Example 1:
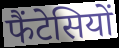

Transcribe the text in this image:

फैंटेसियों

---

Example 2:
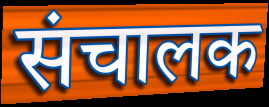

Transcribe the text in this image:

संचालक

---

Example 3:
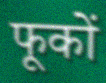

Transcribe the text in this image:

फूकों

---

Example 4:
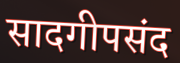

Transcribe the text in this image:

सादगीपसंद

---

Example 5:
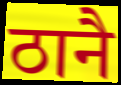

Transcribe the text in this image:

ठानै